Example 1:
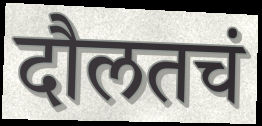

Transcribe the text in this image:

दौलतचं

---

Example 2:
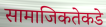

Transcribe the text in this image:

सामाजिकतेकडे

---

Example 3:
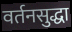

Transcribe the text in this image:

वर्तनसुद्धा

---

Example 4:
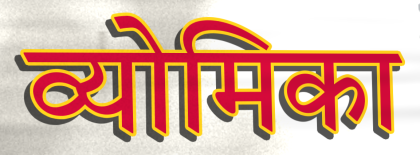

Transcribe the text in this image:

व्योमिका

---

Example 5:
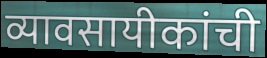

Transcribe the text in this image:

व्यावसायीकांची